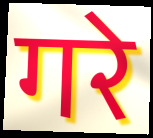
गरे